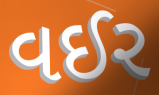
વઈર